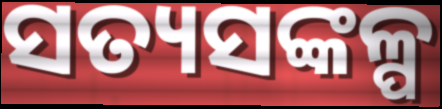
ସତ୍ୟସଙ୍କଳ୍ପ